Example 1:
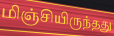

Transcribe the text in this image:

மிஞ்சியிருந்தது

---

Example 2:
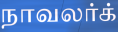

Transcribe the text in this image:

நாவலர்க்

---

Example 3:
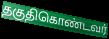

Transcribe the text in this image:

தகுதிகொண்டவர்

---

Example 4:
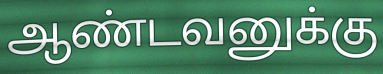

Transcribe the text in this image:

ஆண்டவனுக்கு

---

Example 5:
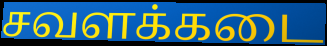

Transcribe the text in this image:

சவளக்கடை